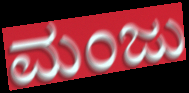
ಮಂಜು